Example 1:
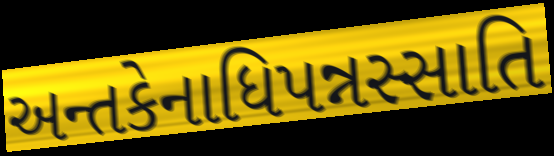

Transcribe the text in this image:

અન્તકેનાધિપન્નસ્સાતિ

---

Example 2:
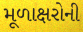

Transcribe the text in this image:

મૂળાક્ષરોની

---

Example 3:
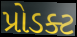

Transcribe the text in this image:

પ્રોડક્ટ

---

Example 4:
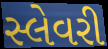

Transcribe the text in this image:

સ્લેવરી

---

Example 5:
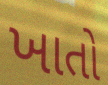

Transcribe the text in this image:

ખાતો